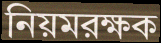
নিয়মরক্ষক